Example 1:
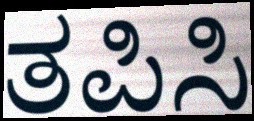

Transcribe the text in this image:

ತಪಿಸಿ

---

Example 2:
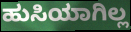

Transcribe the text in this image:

ಹುಸಿಯಾಗಿಲ್ಲ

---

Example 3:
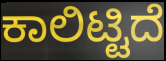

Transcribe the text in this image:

ಕಾಲಿಟ್ಟಿದೆ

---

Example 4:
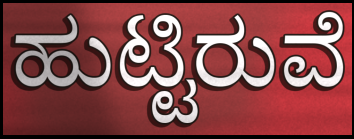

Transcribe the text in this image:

ಹುಟ್ಟಿರುವೆ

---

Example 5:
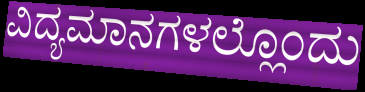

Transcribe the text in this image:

ವಿದ್ಯಮಾನಗಳಲ್ಲೊಂದು